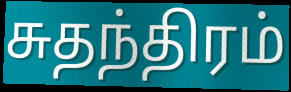
சுதந்திரம்